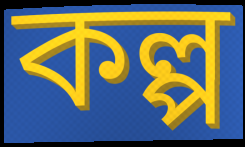
কল্প